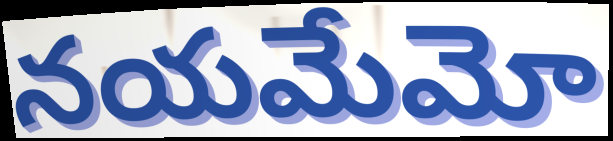
నయమేమో